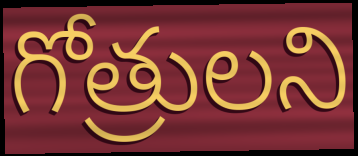
గోత్రులని